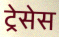
ट्रेसेस